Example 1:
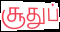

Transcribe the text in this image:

சூதுப்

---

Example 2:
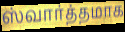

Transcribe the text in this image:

ஸ்வார்த்தமாக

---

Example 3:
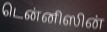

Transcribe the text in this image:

டென்னிஸின்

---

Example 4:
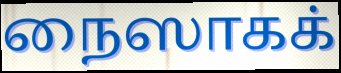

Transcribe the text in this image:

நைஸாகக்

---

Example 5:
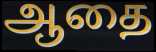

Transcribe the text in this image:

ஆதை